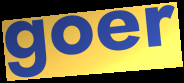
goer